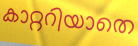
കാറ്ററിയാതെ